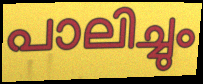
പാലിച്ചും